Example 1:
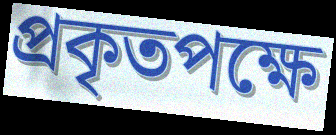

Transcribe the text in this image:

প্ৰকৃতপক্ষে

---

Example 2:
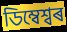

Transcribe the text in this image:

ডিম্বেশ্বৰ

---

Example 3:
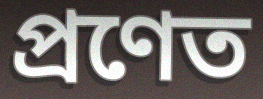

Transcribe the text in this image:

প্ৰণেত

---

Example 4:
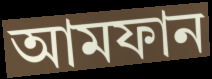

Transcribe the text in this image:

আমফান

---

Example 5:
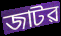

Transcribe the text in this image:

জাটৱ